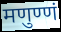
मणुण्णं